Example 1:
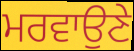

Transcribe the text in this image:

ਮਰਵਾਉਣੇ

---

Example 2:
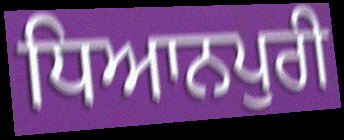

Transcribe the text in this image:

ਧਿਆਨਪੁਰੀ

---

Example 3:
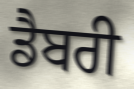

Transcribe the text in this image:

ਡੈਬਰੀ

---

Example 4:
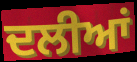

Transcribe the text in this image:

ਦਲੀਆਂ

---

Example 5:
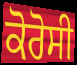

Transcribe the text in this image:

ਕੋਰੋਸੀ